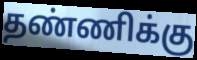
தண்ணிக்கு